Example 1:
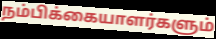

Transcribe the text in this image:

நம்பிக்கையாளர்களும்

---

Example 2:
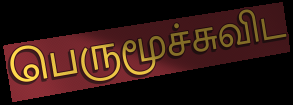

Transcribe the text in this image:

பெருமூச்சுவிட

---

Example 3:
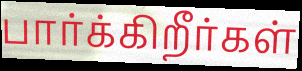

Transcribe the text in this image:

பார்க்கிறீர்கள்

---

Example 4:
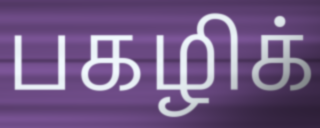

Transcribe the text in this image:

பகழிக்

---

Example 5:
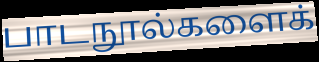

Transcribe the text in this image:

பாடநூல்களைக்